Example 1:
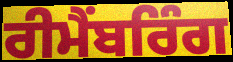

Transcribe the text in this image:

ਰੀਮੈਂਬਰਿੰਗ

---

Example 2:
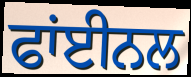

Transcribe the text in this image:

ਫਾਂਈਨਲ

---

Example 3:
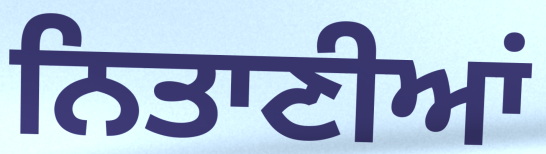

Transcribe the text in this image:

ਨਿਤਾਣੀਆਂ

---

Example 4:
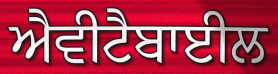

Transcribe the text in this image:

ਐਵੀਟੈਬਾਈਲ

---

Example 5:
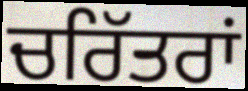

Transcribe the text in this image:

ਚਰਿੱਤਰਾਂ